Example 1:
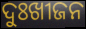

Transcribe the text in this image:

ଦୁଃଖୀଜନ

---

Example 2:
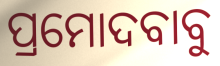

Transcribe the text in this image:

ପ୍ରମୋଦବାବୁ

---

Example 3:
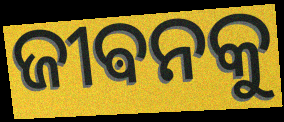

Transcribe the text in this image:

ଜୀଵନକୁ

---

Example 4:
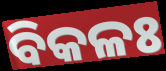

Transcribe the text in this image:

ବିକଳଃ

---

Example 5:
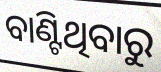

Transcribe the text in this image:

ବାଣ୍ଟିଥିବାରୁ